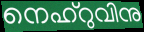
നെഹ്റുവിനു